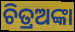
ଚିତ୍ରଅଙ୍କା